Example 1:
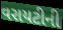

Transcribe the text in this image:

વરાયટીની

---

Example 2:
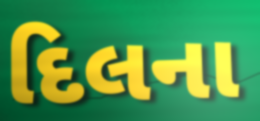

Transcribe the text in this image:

દિલના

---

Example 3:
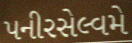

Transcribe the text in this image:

પનીરસેલ્વમે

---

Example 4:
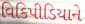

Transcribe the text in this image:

વિકિપીડિયાને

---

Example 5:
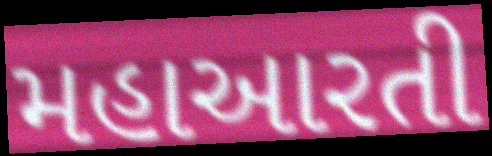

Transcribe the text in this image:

મહાઆરતી